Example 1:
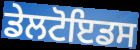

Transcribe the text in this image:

ਡੇਲਟੋਇਡਸ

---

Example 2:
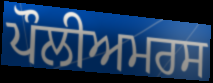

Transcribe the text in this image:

ਪੌਲੀਅਮਰਸ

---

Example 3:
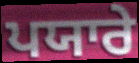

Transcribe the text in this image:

ਪਯਾਰੇ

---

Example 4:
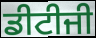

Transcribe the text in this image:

ਡੀਟੀਜੀ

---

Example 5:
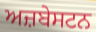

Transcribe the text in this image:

ਅਜ਼ਬੇਸਟਨ